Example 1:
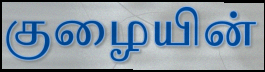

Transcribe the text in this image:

குழையின்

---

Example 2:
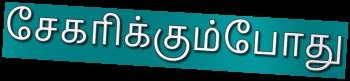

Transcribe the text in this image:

சேகரிக்கும்போது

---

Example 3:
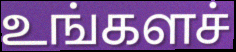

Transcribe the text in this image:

உங்களச்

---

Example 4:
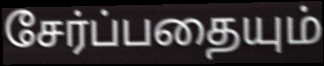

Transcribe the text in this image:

சேர்ப்பதையும்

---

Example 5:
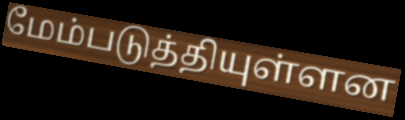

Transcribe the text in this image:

மேம்படுத்தியுள்ளன